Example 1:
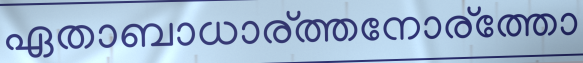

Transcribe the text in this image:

ഏതാബാധാര്ത്തനോര്ത്തോ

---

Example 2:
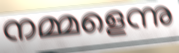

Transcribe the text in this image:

നമ്മളെന്നു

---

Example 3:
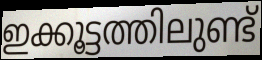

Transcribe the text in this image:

ഇക്കൂട്ടത്തിലുണ്ട്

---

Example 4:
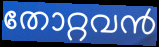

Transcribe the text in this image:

തോറ്റവൻ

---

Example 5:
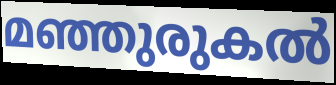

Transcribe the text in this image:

മഞ്ഞുരുകൽ